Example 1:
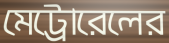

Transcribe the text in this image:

মেট্রোরেলের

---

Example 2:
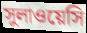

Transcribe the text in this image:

সুলাওয়েসি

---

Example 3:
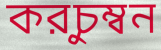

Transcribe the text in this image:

করচুম্বন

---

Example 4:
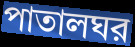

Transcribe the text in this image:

পাতালঘর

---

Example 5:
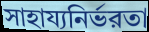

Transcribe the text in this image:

সাহায্যনির্ভরতা